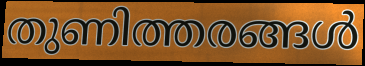
തുണിത്തരങ്ങൾ